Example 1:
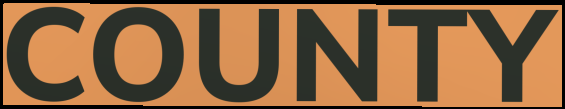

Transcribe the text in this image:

COUNTY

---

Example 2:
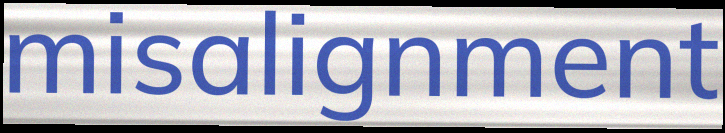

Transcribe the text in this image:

misalignment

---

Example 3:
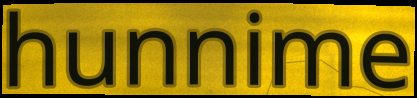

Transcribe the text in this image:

hunnime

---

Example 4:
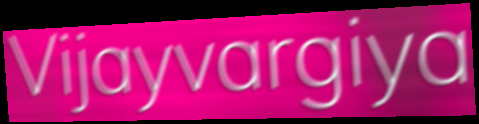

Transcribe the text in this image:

Vijayvargiya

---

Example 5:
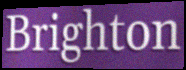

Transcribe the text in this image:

Brighton